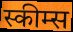
स्‍कीम्‍स